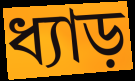
ধ্যাড়